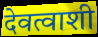
देवत्वाशी